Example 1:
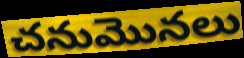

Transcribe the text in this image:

చనుమొనలు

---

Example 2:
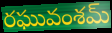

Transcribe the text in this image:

రఘువంశమ్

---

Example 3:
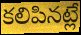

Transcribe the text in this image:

కలిపినట్లే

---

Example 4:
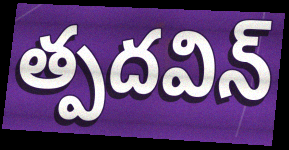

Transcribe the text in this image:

త్పదవిన్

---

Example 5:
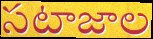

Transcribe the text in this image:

సటాజాల